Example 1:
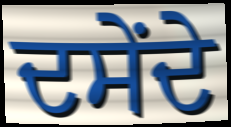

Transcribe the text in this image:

ਦਸੇਂਦੇ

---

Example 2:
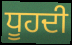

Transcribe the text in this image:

ਧੂਹਦੀ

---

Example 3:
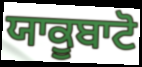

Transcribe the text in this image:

ਯਾਕੂਬਾਟੋ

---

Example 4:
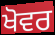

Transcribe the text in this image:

ਖੋਵਰ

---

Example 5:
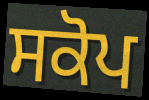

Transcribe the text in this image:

ਸਕੋਪ